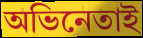
অভিনেতাই